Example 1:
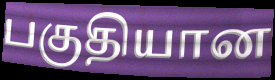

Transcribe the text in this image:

பகுதியான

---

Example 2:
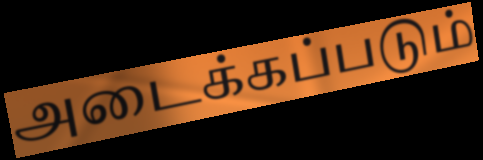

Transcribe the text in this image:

அடைக்கப்படும்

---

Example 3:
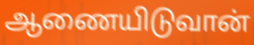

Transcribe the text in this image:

ஆணையிடுவான்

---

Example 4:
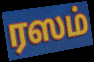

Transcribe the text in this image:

ரஸம்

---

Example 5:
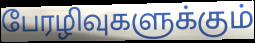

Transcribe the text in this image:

பேரழிவுகளுக்கும்